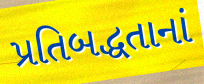
પ્રતિબદ્ધતાનાં